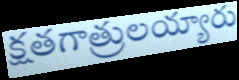
క్షతగాత్రులయ్యారు